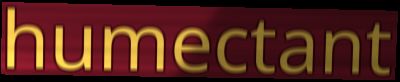
humectant